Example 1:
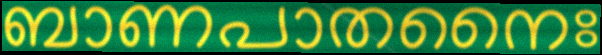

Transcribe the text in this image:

ബാണപാതനൈഃ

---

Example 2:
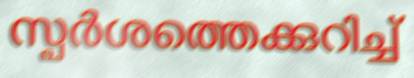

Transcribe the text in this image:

സ്പർശത്തെക്കുറിച്ച്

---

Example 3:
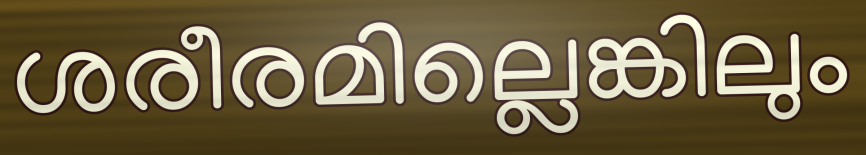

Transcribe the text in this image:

ശരീരമില്ലെങ്കിലും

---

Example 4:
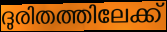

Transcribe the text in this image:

ദുരിതത്തിലേക്ക്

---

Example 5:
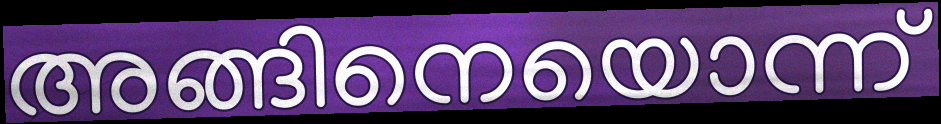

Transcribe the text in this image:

അങ്ങിനെയൊന്ന്